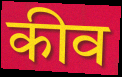
कीव